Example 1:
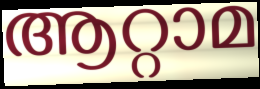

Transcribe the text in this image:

ആറ്റാമ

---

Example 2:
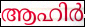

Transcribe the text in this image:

ആഹിർ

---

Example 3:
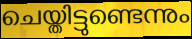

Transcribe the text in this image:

ചെയ്തിട്ടുണ്ടെന്നും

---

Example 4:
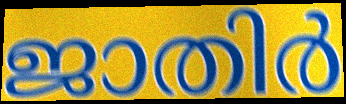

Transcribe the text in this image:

ജാതിർ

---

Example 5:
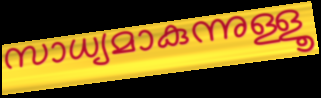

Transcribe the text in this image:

സാധ്യമാകുന്നുള്ളൂ